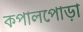
কপালপোড়া